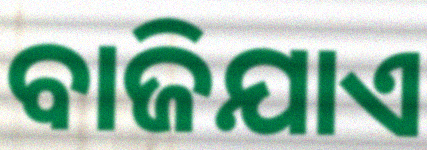
ବାଜିଯାଏ